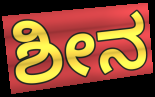
ಶೀನ